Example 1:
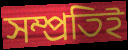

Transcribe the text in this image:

সম্প্রতিই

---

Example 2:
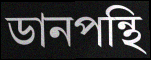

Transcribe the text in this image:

ডানপন্থি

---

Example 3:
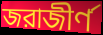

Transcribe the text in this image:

জরাজীর্ণ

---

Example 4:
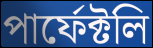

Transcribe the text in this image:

পার্ফেক্টলি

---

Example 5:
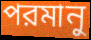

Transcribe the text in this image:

পরমানু